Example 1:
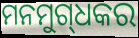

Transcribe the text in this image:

ମନମୁଗ୍‌ଧକର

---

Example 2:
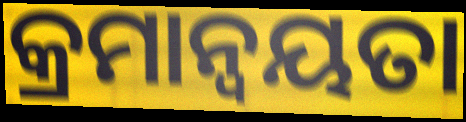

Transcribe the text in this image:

କ୍ରମାନ୍ବୟତା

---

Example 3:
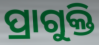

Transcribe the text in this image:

ପ୍ରାଗୁକ୍ତି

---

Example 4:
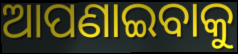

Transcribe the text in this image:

ଆପଣାଇବାକୁ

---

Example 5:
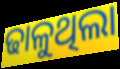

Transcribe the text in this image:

ଢାଳୁଥିଲା